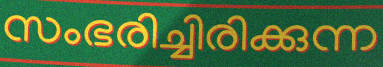
സംഭരിച്ചിരിക്കുന്ന